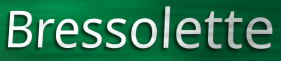
Bressolette